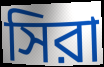
সিরা